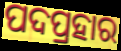
ପଦପ୍ରହାର